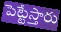
పెట్టేస్తారు